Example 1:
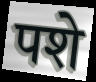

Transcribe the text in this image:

पशे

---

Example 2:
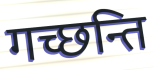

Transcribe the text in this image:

गच्छन्ति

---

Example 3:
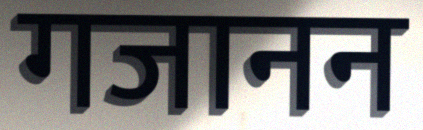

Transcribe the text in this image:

गजानन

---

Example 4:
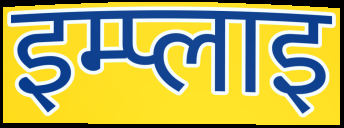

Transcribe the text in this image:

इम्प्लाइ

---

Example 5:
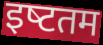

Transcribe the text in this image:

इष्‍टतम